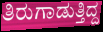
ತಿರುಗಾಡುತ್ತಿದ್ದ